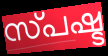
സ്‌പഷ്ട